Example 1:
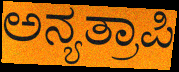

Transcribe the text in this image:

ಅನ್ಯತ್ರಾಪಿ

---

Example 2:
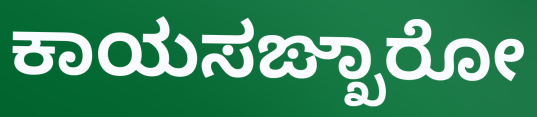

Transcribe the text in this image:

ಕಾಯಸಙ್ಖಾರೋ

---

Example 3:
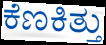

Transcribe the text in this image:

ಕೆಣಕಿತ್ತು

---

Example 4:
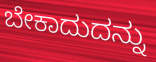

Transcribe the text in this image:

ಬೇಕಾದುದನ್ನು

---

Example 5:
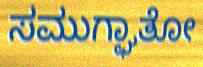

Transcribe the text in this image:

ಸಮುಗ್ಘಾತೋ